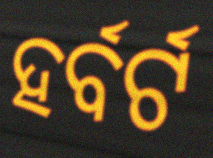
ହର୍ବର୍ଟ